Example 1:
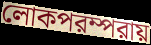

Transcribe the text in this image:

লোকপরম্পরায়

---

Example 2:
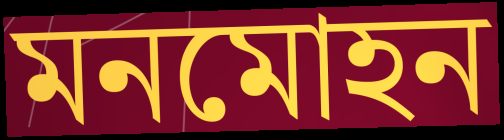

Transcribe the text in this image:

মনমোহন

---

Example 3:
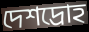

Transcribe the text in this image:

দেশদ্রোহ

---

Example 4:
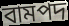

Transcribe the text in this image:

বামপদ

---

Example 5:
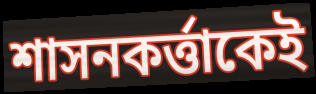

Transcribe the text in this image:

শাসনকর্ত্তাকেই